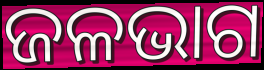
ଜଳଭାଗ